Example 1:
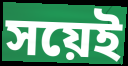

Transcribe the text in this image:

সয়েই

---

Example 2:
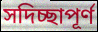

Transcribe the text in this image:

সদিচ্ছাপূর্ণ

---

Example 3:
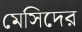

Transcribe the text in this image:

মেসিদের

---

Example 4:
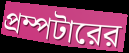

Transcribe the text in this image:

প্রম্পটারের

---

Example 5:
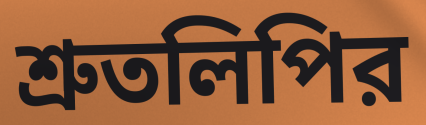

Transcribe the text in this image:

শ্রুতলিপির